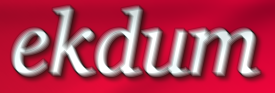
ekdum